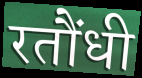
रतौंधी